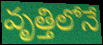
వృత్తిలోనే